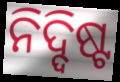
ନିଦ୍ଦିଷ୍ଟ